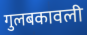
गुलबकावली